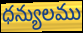
ధన్యులము